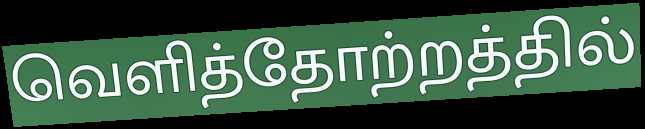
வெளித்தோற்றத்தில்